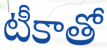
టీకాతో